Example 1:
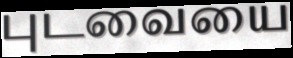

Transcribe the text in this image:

புடவையை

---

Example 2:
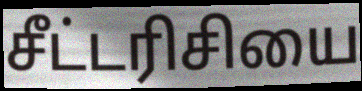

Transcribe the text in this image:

சீட்டரிசியை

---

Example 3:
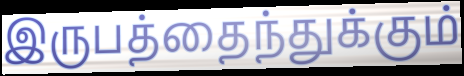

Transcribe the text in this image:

இருபத்தைந்துக்கும்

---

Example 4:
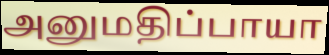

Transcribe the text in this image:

அனுமதிப்பாயா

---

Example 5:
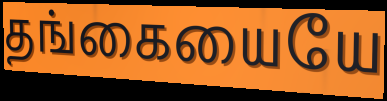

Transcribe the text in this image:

தங்கையையே